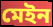
মেইন